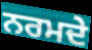
ਨਰਮਦੇ